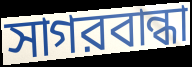
সাগরবান্ধা